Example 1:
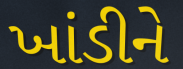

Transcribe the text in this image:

ખાંડીને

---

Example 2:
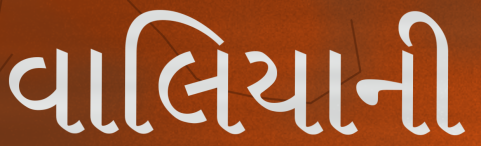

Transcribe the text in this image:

વાલિયાની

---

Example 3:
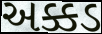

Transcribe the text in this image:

અક્કડ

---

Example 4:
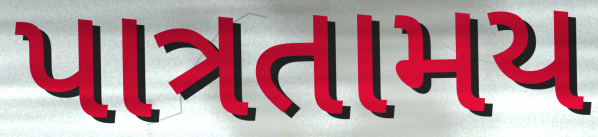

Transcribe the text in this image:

પાત્રતામય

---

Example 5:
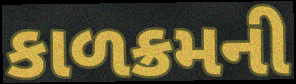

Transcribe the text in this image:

કાળક્રમની